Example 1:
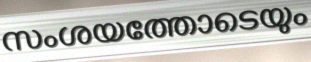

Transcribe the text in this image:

സംശയത്തോടെയും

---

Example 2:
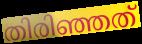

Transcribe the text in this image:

തിരിഞ്ഞത്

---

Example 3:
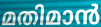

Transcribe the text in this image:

മതിമാൻ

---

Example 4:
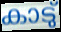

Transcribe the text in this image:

കാടു്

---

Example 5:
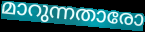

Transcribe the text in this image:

മാറുന്നതാരോ